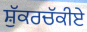
ਸ਼ੁੱਕਰਚੱਕੀਏ